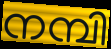
നമ്പി